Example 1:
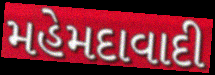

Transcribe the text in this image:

મહેમદાવાદી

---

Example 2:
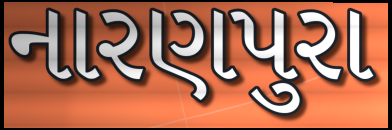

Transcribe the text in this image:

નારણપુરા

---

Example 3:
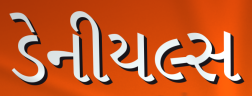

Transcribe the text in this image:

ડેનીયલ્સ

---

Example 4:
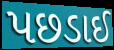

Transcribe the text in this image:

પછડાઈ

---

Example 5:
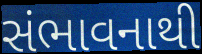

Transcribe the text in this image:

સંભાવનાથી